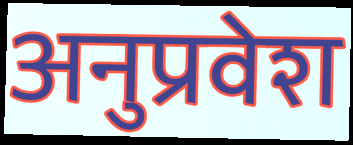
अनुप्रवेश